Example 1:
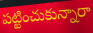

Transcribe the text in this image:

పట్టించుకున్నారా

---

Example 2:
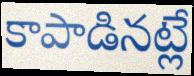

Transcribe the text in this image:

కాపాడినట్లే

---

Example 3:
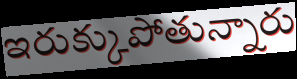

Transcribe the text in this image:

ఇరుక్కుపోతున్నారు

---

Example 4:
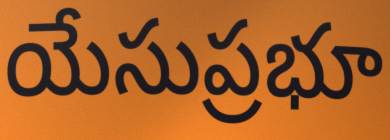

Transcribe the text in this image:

యేసుప్రభూ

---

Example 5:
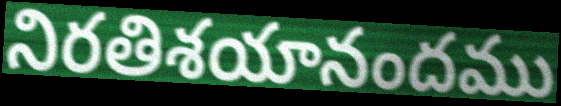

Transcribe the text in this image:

నిరతిశయానందము